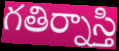
గతిర్నాస్తి